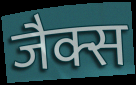
जैक्स